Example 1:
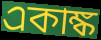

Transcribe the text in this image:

একাঙ্ক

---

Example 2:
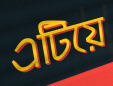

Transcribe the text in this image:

এটিয়ে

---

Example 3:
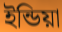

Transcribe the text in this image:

ইন্ডিয়া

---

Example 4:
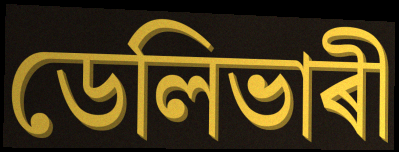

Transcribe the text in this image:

ডেলিভাৰী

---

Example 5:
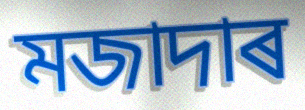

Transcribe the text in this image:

মজাদাৰ